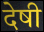
देषी